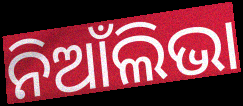
ନିଆଁଲିଭା